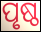
ପୃଷ୍ଠ